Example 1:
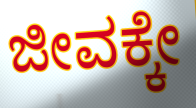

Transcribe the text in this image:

ಜೀವಕ್ಕೇ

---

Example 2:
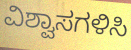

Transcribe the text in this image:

ವಿಶ್ವಾಸಗಳಿಸಿ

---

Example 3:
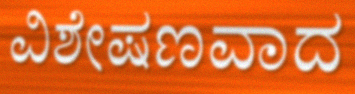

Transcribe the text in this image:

ವಿಶೇಷಣವಾದ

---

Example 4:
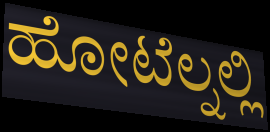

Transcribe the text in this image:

ಹೋಟೆಲ್ನಲ್ಲಿ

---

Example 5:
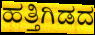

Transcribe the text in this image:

ಹತ್ತಿಗಿಡದ